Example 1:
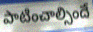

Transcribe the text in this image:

పాటించాల్సిందే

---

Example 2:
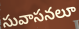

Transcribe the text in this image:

సువాసనలూ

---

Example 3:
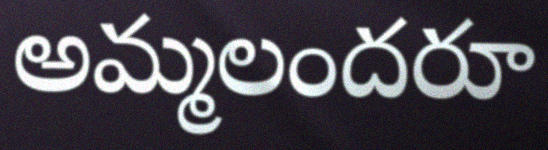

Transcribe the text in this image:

అమ్మలందరూ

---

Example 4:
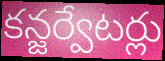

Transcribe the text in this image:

కన్జర్వేటర్లు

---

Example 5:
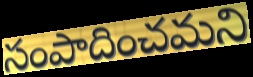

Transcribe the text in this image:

సంపాదించమని